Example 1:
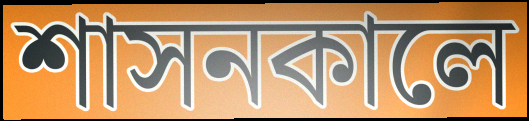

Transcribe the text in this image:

শাসনকালে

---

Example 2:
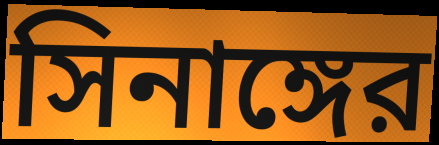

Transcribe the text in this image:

সিনাঙ্গের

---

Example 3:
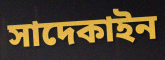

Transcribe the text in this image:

সাদেকাইন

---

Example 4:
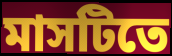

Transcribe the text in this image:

মাসটিতে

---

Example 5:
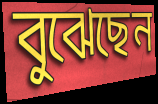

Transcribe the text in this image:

বুঝেছেন